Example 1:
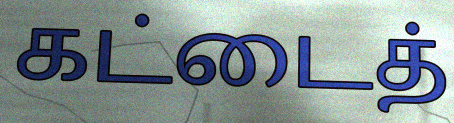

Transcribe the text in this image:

கட்டைத்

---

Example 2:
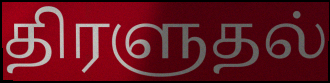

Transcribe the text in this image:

திரளுதல்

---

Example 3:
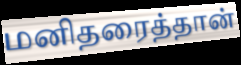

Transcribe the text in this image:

மனிதரைத்தான்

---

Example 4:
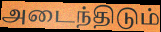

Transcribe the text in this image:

அடைந்திடும்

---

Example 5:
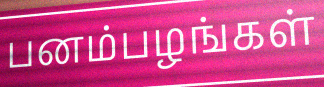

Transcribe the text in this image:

பனம்பழங்கள்